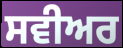
ਸਵੀਅਰ